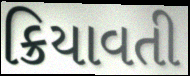
ક્રિયાવતી